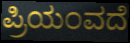
ಪ್ರಿಯಂವದೆ